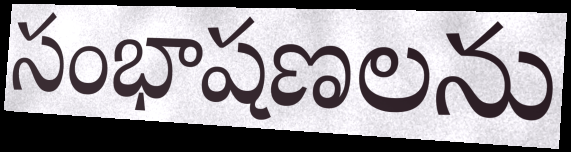
సంభాషణలను